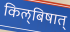
किल्बिषात्